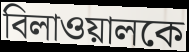
বিলাওয়ালকে